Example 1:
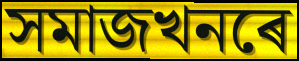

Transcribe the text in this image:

সমাজখনৰে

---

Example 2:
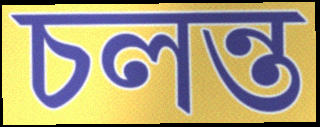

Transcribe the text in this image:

চলন্ত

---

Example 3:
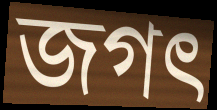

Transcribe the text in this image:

জগৎ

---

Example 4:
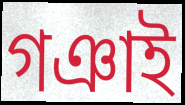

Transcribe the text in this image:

গঞাই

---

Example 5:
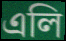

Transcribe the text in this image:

এলি